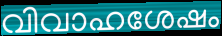
വിവാഹശേഷം